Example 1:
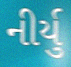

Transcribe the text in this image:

નીર્યુ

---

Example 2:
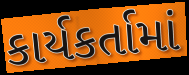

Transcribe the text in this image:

કાર્યકર્તામાં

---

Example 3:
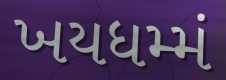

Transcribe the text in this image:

ખયધમ્મં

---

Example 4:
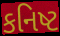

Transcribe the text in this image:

કનિષ્ટ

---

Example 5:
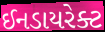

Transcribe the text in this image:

ઈનડાયરેક્ટ